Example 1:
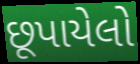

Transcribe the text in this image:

છૂપાયેલો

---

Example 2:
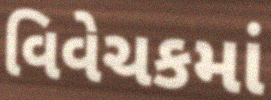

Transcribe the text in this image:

વિવેચકમાં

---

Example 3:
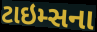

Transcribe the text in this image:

ટાઇમ્સના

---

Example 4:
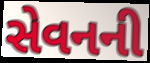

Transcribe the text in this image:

સેવનની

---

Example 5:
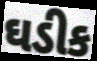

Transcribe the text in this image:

ઘડીક